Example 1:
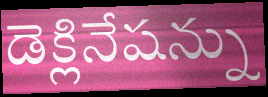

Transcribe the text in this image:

డెక్లినేషన్ను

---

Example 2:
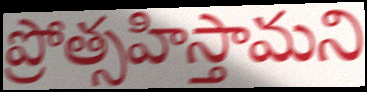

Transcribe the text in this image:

ప్రోత్సహిస్తామని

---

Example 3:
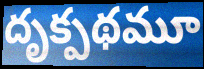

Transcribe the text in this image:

దృక్పథమూ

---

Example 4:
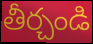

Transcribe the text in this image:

తీర్చండి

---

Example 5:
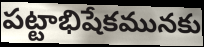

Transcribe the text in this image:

పట్టాభిషేకమునకు